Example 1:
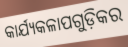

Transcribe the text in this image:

କାର୍ଯ୍ୟକଳାପଗୁଡ଼ିକର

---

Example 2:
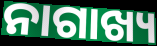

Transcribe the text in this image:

ନାଗାଖ୍ୟ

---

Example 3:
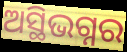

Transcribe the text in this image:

ଅସ୍ଥିଭଗ୍ନର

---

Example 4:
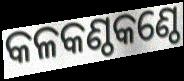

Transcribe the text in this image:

କଳକଣ୍ଠକଣ୍ଠେ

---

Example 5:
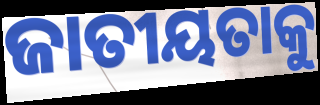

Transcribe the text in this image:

ଜାତୀୟତାକୁ